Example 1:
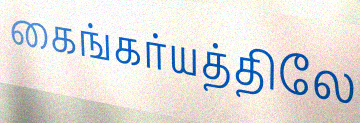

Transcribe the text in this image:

கைங்கர்யத்திலே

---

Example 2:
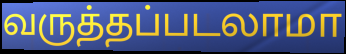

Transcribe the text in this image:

வருத்தப்படலாமா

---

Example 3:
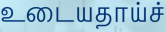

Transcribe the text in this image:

உடையதாய்ச்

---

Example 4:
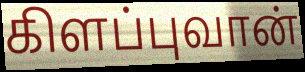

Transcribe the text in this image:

கிளப்புவான்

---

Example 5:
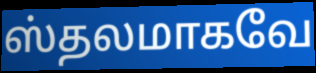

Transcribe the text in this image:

ஸ்தலமாகவே